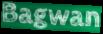
Bagwan